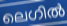
ലെഗിൽ